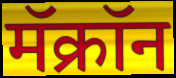
मॅक्रॉन